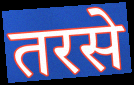
तरसे